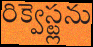
రిక్వెస్ట్లను